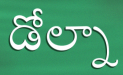
డోల్నా